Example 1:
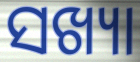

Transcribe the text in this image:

ସଖ୍ୟା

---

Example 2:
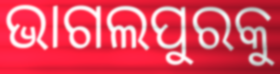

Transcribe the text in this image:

ଭାଗଲପୁରକୁ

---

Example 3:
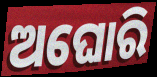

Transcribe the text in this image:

ଅଘୋରି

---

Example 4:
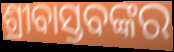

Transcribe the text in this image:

ଶ୍ରୀବାସ୍ତବଙ୍କର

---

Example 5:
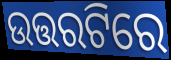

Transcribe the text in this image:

ଉତ୍ତରଟିରେ